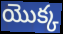
యొక్క